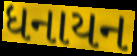
ધનાયન